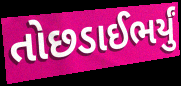
તોછડાઈભર્યું